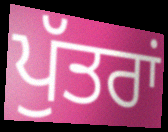
ਪੁੱਤਰਾਂ